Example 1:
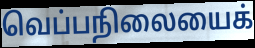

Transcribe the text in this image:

வெப்பநிலையைக்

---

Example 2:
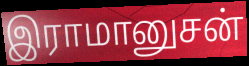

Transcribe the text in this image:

இராமானுசன்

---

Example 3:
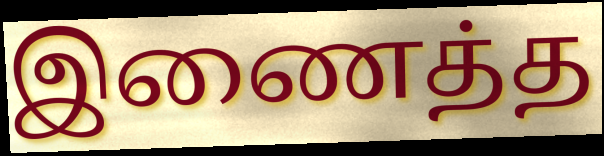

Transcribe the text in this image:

இணைத்த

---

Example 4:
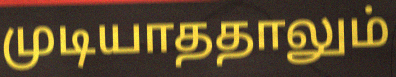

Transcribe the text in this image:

முடியாததாலும்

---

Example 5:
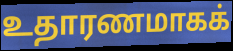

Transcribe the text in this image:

உதாரணமாகக்